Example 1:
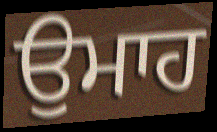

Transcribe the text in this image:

ਉਮਾਹ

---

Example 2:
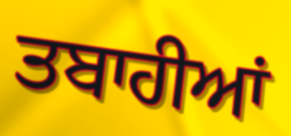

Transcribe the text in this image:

ਤਬਾਹੀਆਂ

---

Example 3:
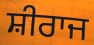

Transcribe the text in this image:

ਸ਼ੀਰਾਜ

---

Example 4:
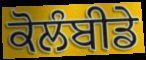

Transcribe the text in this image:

ਕੋਲੰਬੀਡੇ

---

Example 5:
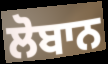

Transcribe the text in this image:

ਲੋਬਾਨ